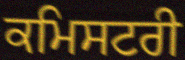
ਕਮਿਸਟਰੀ